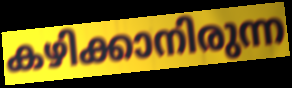
കഴിക്കാനിരുന്ന